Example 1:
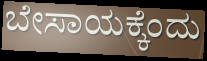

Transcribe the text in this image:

ಬೇಸಾಯಕ್ಕೆಂದು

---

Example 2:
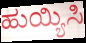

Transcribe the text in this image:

ಹುಯ್ಯಿಸಿ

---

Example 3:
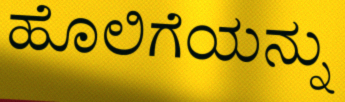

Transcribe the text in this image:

ಹೊಲಿಗೆಯನ್ನು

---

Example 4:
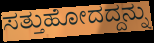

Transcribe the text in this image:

ಸತ್ತುಹೋದದ್ದನ್ನು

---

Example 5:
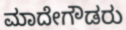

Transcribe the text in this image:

ಮಾದೇಗೌಡರು